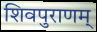
शिवपुराणम्